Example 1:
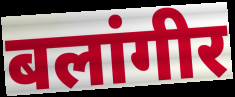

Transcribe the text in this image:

बलांगीर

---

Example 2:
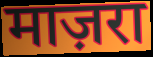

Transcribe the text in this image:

माज़रा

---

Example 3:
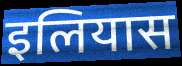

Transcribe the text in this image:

इलियास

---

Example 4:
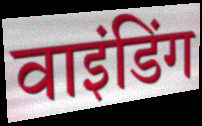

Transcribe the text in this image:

वाइंडिंग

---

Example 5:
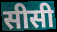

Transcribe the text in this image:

सीसी